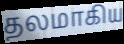
தலமாகிய